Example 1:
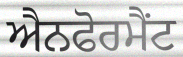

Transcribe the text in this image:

ਐਨਫੋਰਮੈਂਟ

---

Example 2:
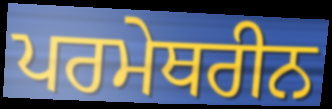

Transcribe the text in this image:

ਪਰਮੇਥਰੀਨ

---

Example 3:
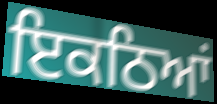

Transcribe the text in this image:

ਇਕਠਿਆਂ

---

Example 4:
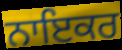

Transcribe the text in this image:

ਨਾਇਕਰ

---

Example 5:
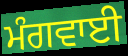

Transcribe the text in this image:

ਮੰਗਵਾਈ